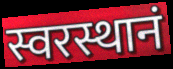
स्वरस्थानं